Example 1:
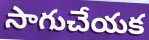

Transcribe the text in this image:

సాగుచేయక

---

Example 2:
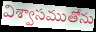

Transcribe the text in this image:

విశ్వాసముతోను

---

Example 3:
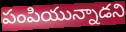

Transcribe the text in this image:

పంపియున్నాడని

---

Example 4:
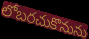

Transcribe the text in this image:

లోబరచుకొనును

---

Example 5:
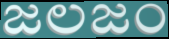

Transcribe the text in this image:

జలజం